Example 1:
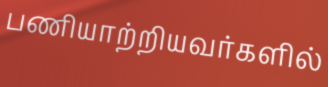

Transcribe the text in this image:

பணியாற்றியவர்களில்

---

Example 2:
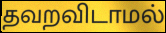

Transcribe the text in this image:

தவறவிடாமல்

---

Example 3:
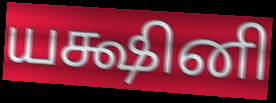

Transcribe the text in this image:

யக்ஷினி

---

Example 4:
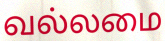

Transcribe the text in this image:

வல்லமை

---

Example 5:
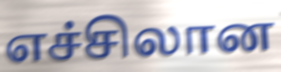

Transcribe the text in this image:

எச்சிலான